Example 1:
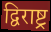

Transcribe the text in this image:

द्विराष्ट्र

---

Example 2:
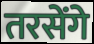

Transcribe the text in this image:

तरसेंगे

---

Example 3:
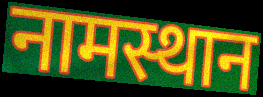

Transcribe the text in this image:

नामस्थान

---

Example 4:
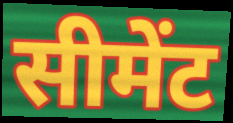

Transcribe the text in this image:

सीमेंट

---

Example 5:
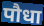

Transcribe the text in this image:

पौधा